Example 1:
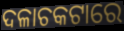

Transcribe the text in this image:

ଦଳାଚକଟାରେ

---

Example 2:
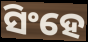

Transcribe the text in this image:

ସିଂହେ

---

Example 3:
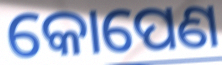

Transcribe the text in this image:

କୋପେଣ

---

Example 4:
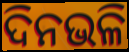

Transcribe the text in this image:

ଦିନଭଳି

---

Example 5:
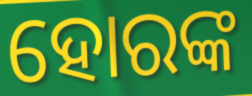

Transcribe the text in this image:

ହୋରଙ୍କ